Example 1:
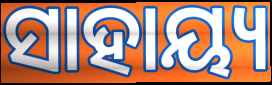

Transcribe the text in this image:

ସାହାୟ୍ୟ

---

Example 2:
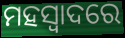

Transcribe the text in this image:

ମହସ୍ୱାଦରେ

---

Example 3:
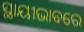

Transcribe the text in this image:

ସ୍ଥାୟୀଭାବରେ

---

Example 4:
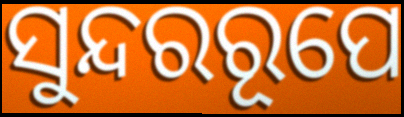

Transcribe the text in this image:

ସୁନ୍ଦରରୂପେ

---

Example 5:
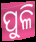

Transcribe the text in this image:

ପୁଳି